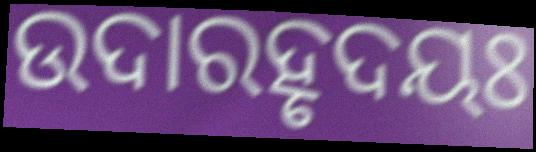
ଉଦାରହୃଦୟଃ